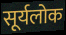
सूर्यलोक